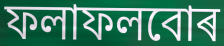
ফলাফলবোৰ